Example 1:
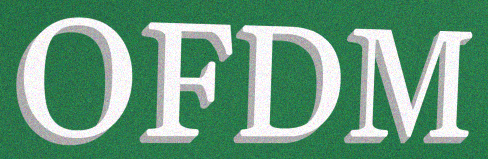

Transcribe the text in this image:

OFDM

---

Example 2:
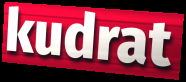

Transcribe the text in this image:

kudrat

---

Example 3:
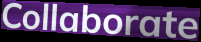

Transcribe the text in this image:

Collaborate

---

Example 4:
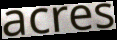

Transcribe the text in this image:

acres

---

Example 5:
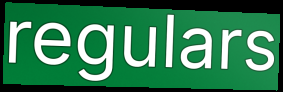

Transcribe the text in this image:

regulars